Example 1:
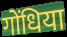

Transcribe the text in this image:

गोंधिया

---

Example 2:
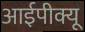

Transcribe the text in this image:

आईपीक्यू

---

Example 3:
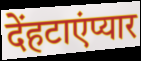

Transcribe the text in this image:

देंहटाएंप्यार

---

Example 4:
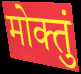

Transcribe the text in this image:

मोक्तुं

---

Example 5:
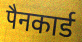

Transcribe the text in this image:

पैनकार्ड